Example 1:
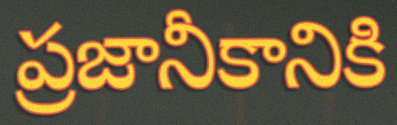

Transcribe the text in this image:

ప్రజానీకానికి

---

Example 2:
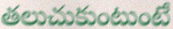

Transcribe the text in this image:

తలుచుకుంటుంటే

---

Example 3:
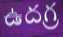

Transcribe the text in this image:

ఉదగ్ర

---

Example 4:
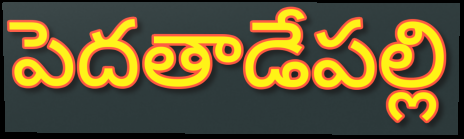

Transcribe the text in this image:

పెదతాడేపల్లి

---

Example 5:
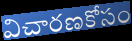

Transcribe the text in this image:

విచారణకోసం